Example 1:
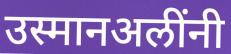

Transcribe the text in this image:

उस्मानअलींनी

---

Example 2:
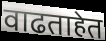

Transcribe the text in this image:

वाढताहेत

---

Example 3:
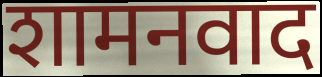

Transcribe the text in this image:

शामनवाद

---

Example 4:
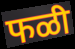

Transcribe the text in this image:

फळी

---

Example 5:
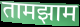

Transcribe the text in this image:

तामझाम